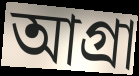
আগ্ৰা